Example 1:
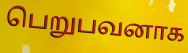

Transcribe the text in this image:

பெறுபவனாக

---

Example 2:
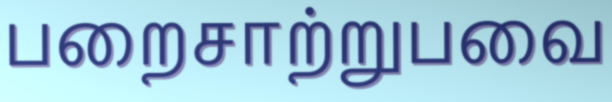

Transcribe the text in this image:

பறைசாற்றுபவை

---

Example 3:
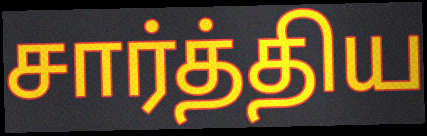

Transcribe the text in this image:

சார்த்திய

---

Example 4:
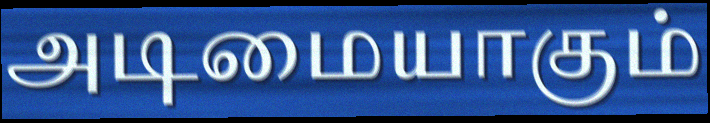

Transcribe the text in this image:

அடிமையாகும்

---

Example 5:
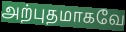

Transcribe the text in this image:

அற்புதமாகவே